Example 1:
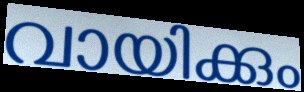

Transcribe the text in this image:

വായിക്കും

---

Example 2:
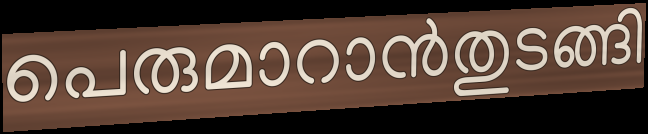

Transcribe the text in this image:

പെരുമാറാൻതുടങ്ങി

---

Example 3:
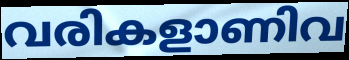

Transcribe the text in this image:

വരികളാണിവ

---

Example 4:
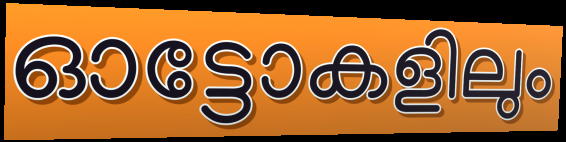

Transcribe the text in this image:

ഓട്ടോകളിലും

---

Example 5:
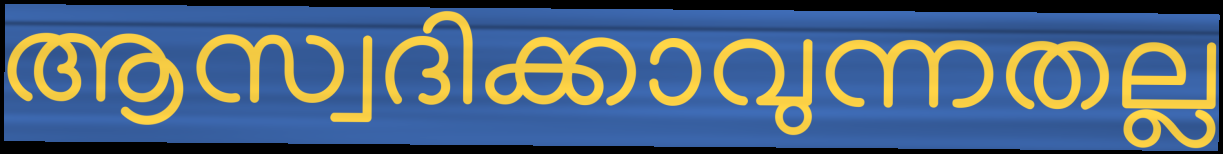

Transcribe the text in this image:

ആസ്വദിക്കാവുന്നതല്ല